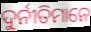
ଦୁର୍ନୀତିମାନେ